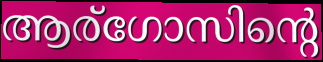
ആര്ഗോസിന്റെ